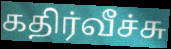
கதிர்வீச்சு